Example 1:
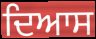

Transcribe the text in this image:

ਦਿਆਸ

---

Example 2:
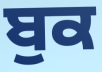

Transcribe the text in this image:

ਬੁਕ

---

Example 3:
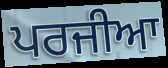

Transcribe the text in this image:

ਪਰਜੀਆ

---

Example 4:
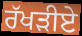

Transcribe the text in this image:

ਰੱਖੜੀਏ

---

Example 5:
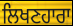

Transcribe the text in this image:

ਲਿਖਣਹਾਰਾ